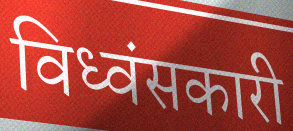
विध्वंसकारी